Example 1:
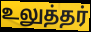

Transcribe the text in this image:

உலுத்தர்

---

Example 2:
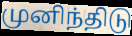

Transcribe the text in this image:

முனிந்திடு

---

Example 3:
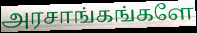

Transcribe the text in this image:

அரசாங்கங்களே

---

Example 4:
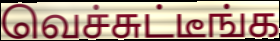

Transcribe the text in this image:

வெச்சுட்டீங்க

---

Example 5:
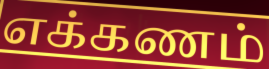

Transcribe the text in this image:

எக்கணம்